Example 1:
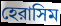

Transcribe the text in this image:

হেরাসিম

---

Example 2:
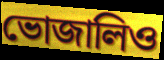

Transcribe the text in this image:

ভোজালিও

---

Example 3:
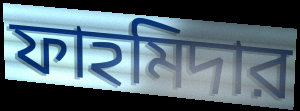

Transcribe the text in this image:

ফাহমিদার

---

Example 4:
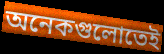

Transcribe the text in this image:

অনেকগুলোতেই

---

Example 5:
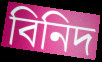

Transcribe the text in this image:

বিনিদ